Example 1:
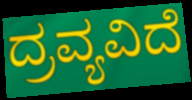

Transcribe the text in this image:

ದ್ರವ್ಯವಿದೆ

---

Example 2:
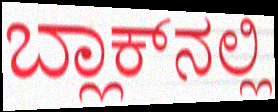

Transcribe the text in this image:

ಬ್ಲಾಕ್‌ನಲ್ಲಿ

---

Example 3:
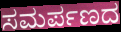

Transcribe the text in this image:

ಸಮರ್ಪಣದ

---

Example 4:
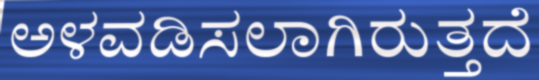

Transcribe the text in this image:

ಅಳವಡಿಸಲಾಗಿರುತ್ತದೆ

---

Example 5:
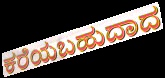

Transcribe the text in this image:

ಕರೆಯಬಹುದಾದ